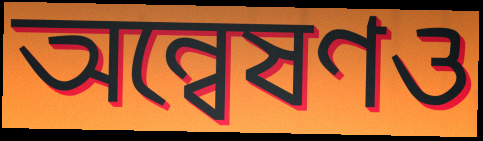
অন্বেষণও